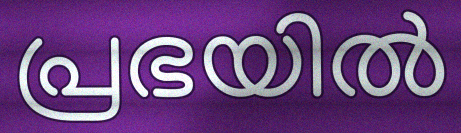
പ്രഭയിൽ